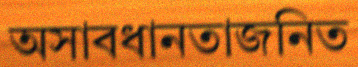
অসাবধানতাজনিত